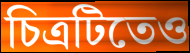
চিত্রটিতেও